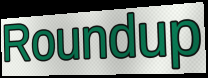
Roundup